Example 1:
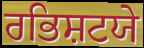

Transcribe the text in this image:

ਰਭਿਸ਼ਟਯੇ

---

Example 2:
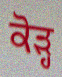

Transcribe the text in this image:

ਕੋੜ੍ਹ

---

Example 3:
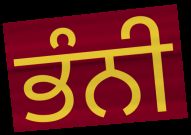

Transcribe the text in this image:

ਭੰਨੀ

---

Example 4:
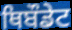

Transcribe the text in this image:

ਥਿਬੌਡੇਟ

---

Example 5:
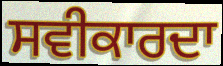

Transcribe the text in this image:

ਸਵੀਕਾਰਦਾ